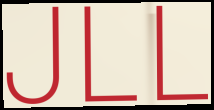
JLL